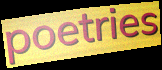
poetries